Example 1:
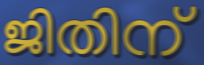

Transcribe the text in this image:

ജിതിന്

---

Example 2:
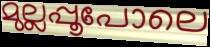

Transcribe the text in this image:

മുല്ലപ്പൂപോലെ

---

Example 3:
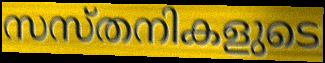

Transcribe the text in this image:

സസ്തനികളുടെ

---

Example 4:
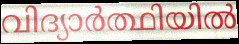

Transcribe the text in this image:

വിദ്യാർത്ഥിയിൽ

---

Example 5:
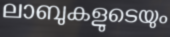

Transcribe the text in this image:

ലാബുകളുടെയും